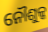
ନୌଶୁଳ୍କ